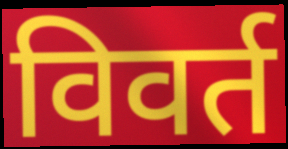
विवर्त